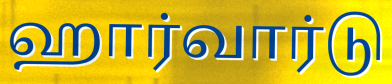
ஹார்வார்டு